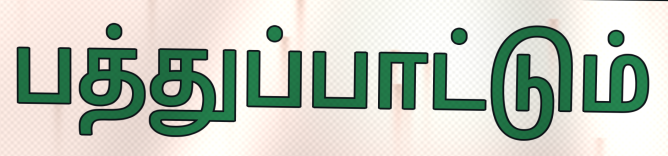
பத்துப்பாட்டும்